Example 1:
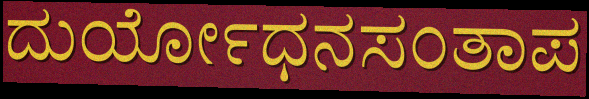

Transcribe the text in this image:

ದುರ್ಯೋಧನಸಂತಾಪ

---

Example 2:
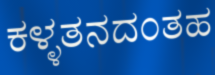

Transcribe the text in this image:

ಕಳ್ಳತನದಂತಹ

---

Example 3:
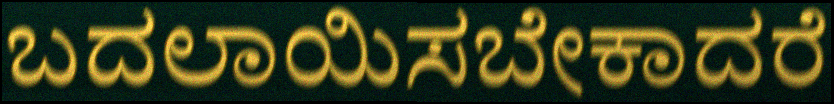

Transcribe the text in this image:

ಬದಲಾಯಿಸಬೇಕಾದರೆ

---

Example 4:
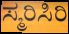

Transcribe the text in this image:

ಸ್ಮರಿಸಿರಿ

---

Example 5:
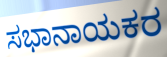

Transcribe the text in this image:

ಸಭಾನಾಯಕರ